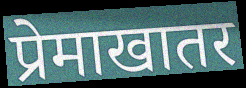
प्रेमाखातर